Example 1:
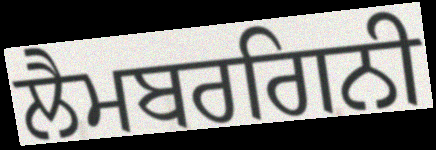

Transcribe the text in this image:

ਲੈਮਬਰਗਿਨੀ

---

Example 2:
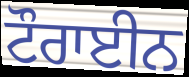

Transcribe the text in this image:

ਟੌਰਾਈਨ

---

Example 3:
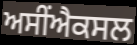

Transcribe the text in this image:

ਅਸੀਂਐਕਸਲ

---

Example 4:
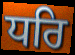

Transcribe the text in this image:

ਧਰਿ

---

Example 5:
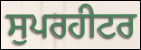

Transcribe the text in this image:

ਸੁਪਰਹੀਟਰ